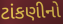
ટાંકણીનો